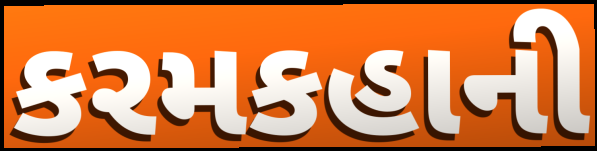
કરમકહાની